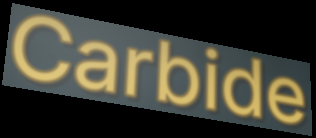
Carbide